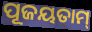
ପୂଜୟତାମ୍